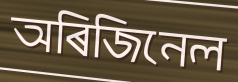
অৰিজিনেল